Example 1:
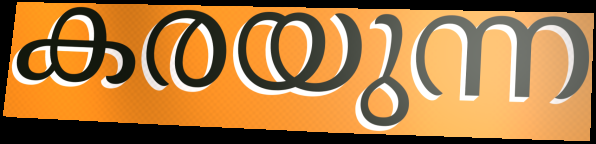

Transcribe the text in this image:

കരയുന്ന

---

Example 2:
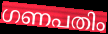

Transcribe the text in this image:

ഗണപതിം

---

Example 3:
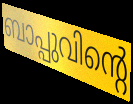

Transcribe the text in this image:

ബാപ്പുവിന്റെ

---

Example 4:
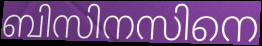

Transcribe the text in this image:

ബിസിനസിനെ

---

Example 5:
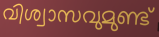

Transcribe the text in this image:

വിശ്വാസവുമുണ്ട്